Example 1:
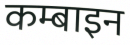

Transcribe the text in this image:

कम्बाइन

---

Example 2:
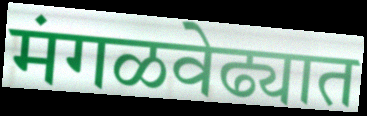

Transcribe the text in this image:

मंगळवेढ्यात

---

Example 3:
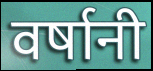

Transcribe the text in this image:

वर्षानी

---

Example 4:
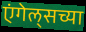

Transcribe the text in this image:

एंगेल्सच्या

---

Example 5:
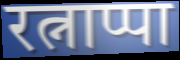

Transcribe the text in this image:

रत्नाप्पा